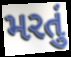
મરતું